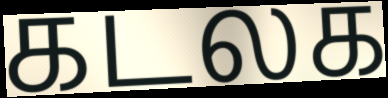
கடலக